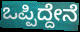
ಒಪ್ಪಿದ್ದೇನೆ